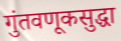
गुंतवणूकसुद्धा